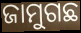
ଜାମୁଗଛ